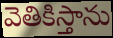
వెతికిస్తాను